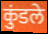
कुंडले